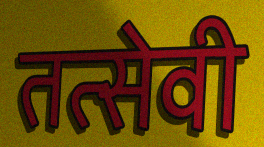
तत्सेवी